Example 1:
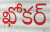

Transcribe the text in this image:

ఖోకర్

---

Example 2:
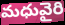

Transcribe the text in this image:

మధువైరి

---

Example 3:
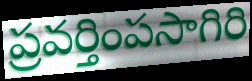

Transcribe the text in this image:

ప్రవర్తింపసాగిరి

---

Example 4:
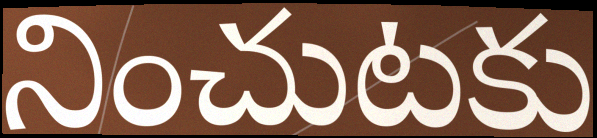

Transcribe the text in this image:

నించుటకు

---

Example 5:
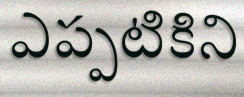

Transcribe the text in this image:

ఎప్పటికిని